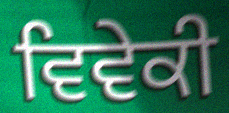
ਵਿਵੇਕੀ